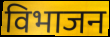
विभाजन